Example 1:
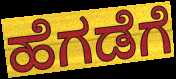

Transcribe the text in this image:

ಹೆಗಡೆಗೆ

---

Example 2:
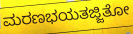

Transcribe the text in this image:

ಮರಣಭಯತಜ್ಜಿತೋ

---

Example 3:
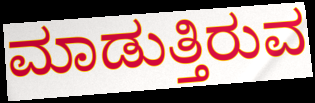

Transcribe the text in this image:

ಮಾಡುತ್ತಿರುವ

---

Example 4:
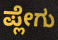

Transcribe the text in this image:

ಪ್ಲೇಗು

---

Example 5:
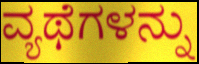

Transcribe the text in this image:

ವ್ಯಥೆಗಳನ್ನು